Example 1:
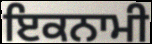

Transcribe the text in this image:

ਇਕਨਾਮੀ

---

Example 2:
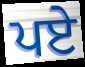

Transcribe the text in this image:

ਪਏ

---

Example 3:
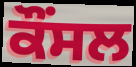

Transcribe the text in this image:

ਕੌਂਸਲ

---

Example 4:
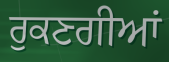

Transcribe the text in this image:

ਰੁਕਣਗੀਆਂ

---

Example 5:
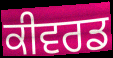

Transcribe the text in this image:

ਕੀਵਰਡ